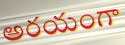
అరయంగా